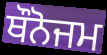
ਥੌਨੋਜਮ